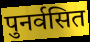
पुनर्वसित